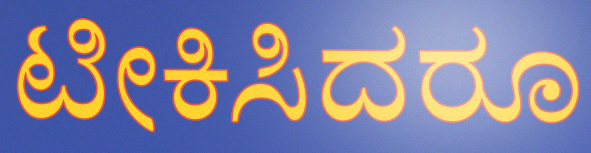
ಟೀಕಿಸಿದರೂ